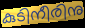
കുടിനീരിനു